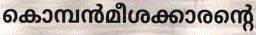
കൊമ്പൻമീശക്കാരന്റെ